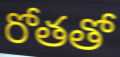
రోతతో